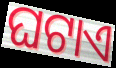
ଘଟାଏ